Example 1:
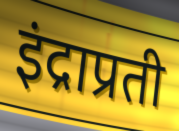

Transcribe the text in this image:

इंद्राप्रती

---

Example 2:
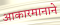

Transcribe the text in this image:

आकारमानाने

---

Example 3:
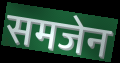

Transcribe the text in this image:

समजेन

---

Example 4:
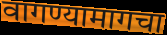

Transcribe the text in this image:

वागण्यामागचा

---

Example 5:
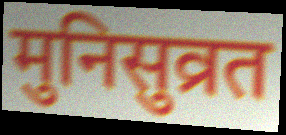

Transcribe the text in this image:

मुनिसुव्रत